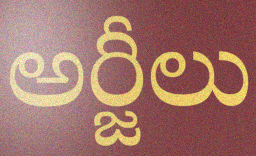
అర్జీలు